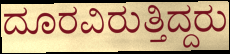
ದೂರವಿರುತ್ತಿದ್ದರು